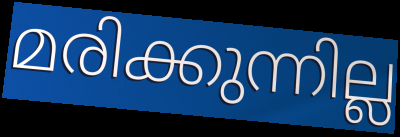
മരിക്കുന്നില്ല